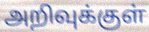
அறிவுக்குள்